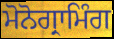
ਮੋਨੋਗ੍ਰਾਮਿੰਗ